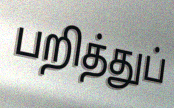
பறித்துப்